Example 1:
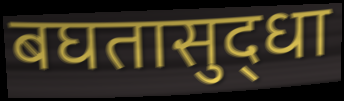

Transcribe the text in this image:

बघतासुद्धा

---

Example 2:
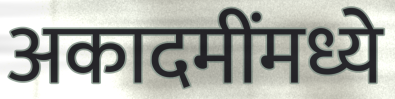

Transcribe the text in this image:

अकादमींमध्ये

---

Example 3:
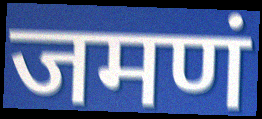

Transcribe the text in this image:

जमणं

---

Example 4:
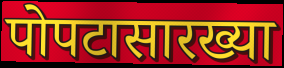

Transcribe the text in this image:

पोपटासारख्या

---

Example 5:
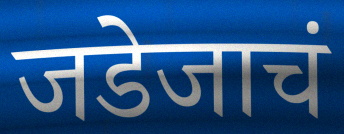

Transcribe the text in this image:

जडेजाचं